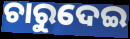
ଚାରୁଦେଇ